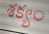
శక్యం